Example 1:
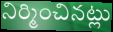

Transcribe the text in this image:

నిర్మించినట్లు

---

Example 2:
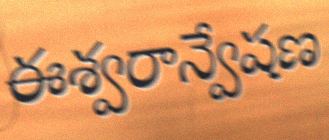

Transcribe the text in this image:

ఈశ్వరాన్వేషణ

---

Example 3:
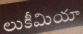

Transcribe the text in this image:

లుకీమియా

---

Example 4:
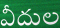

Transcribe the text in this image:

వీదుల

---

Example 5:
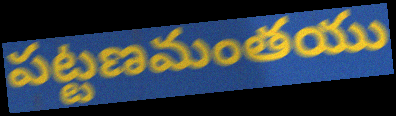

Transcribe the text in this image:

పట్టణమంతయు